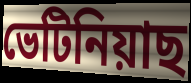
ভেটিনিয়াছ